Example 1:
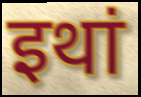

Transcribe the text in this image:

इथां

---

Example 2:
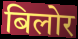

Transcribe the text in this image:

बिलोर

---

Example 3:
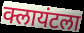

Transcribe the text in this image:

क्लायंटला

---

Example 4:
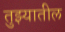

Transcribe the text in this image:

तुझ्यातील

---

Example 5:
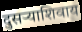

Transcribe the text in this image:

दुसऱ्याशिवाय